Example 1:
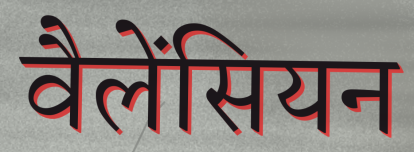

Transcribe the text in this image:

वैलेंसियन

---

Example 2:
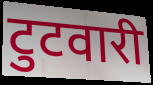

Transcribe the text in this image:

टुटवारी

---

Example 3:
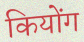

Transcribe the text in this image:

कियोंग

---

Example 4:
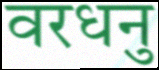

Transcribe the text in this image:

वरधनु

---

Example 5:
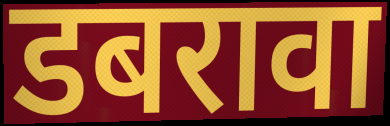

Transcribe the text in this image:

डबरावा